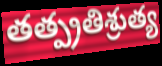
తత్ప్రతిశ్రుత్య